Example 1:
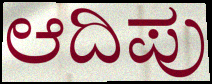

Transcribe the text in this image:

ಆದಿಪು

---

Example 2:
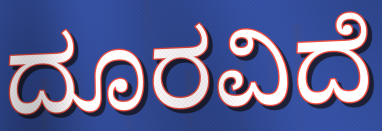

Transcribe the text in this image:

ದೂರವಿದೆ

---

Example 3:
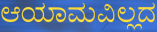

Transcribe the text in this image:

ಆಯಾಮವಿಲ್ಲದ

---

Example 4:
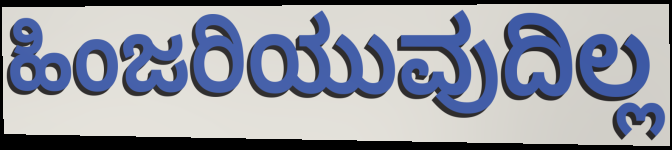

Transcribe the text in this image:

ಹಿಂಜರಿಯುವುದಿಲ್ಲ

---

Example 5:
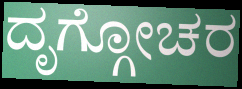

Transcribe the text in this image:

ದೃಗ್ಗೋಚರ